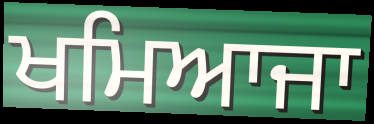
ਖਮਿਆਜਾ